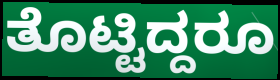
ತೊಟ್ಟಿದ್ದರೂ